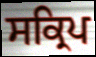
ਸਕ੍ਰਿਪ